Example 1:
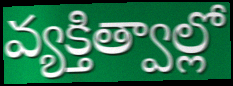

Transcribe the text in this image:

వ్యక్తిత్వాల్లో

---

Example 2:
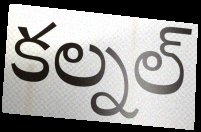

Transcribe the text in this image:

కల్నల్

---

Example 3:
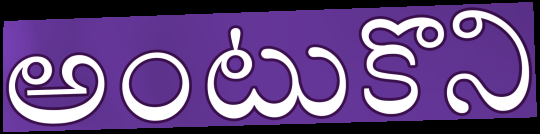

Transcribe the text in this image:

అంటుకొని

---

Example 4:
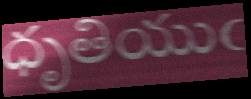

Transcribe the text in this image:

ధృతియుఁ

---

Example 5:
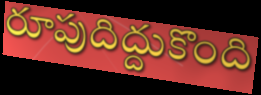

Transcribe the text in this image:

రూపుదిద్దుకొంది